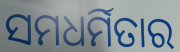
ସମଧର୍ମିତାର